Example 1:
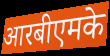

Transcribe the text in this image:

आरबीएमके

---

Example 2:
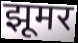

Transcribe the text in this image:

झूमर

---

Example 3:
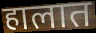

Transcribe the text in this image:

हालात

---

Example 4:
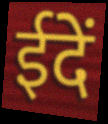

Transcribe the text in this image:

ईदें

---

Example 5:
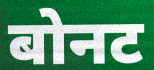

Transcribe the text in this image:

बोनट